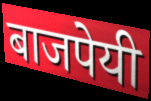
बाजपेयी